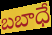
బబాధే